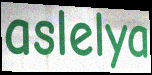
aslelya